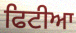
ਫਿਟੀਆ